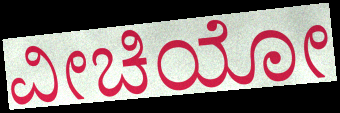
ವೀಚಿಯೋ